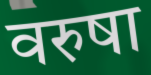
वरुषा